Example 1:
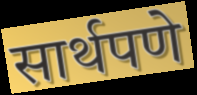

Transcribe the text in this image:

सार्थपणे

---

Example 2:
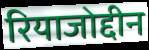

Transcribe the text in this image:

रियाजोद्दीन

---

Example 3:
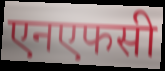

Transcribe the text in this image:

एनएफसी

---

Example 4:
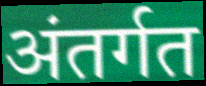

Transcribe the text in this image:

अंतर्गत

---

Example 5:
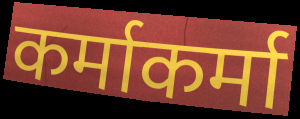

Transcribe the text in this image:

कर्माकर्मा